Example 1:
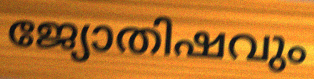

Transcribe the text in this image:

ജ്യോതിഷവും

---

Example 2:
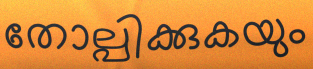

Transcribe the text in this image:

തോല്പിക്കുകയും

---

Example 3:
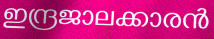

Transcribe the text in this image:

ഇന്ദ്രജാലക്കാരൻ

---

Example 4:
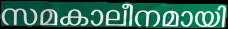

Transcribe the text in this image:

സമകാലീനമായി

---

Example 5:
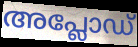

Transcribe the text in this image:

അപ്ലോഡ്